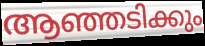
ആഞ്ഞടിക്കും